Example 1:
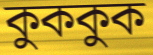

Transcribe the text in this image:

কুককুক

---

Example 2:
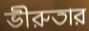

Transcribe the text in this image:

ভীরুতার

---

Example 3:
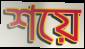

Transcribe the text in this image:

শয়ে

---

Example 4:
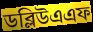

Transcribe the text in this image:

ডব্লিউএএফ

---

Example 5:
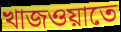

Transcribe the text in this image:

খাজওয়াতে